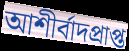
আশীর্বাদপ্রাপ্ত